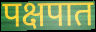
पक्षपात